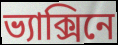
ভ্যাক্সিনে